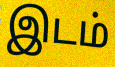
இடம்